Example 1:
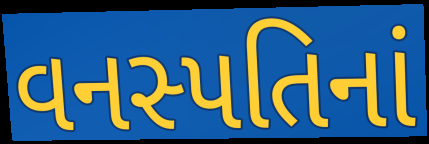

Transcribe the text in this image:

વનસ્પતિનાં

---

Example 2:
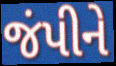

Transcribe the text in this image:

જંપીને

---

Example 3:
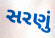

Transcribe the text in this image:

સરણું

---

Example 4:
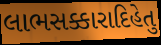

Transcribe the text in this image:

લાભસક્કારાદિહેતુ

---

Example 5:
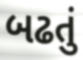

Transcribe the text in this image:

બઢતું